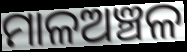
ମାଳଅଞ୍ଚଳ